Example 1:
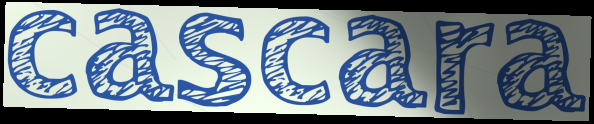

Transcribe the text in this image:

cascara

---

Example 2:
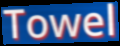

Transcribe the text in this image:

Towel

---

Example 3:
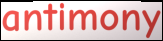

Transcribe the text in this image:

antimony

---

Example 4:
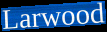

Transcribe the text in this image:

Larwood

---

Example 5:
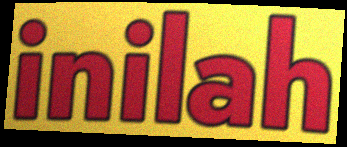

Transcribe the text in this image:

inilah